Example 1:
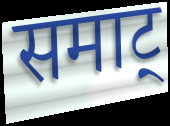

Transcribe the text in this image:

समाट्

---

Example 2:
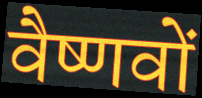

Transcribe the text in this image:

वैष्णवों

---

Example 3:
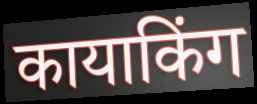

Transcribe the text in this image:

कायाकिंग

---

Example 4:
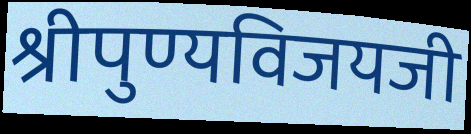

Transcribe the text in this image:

श्रीपुण्यविजयजी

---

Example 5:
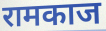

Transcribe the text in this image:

रामकाज